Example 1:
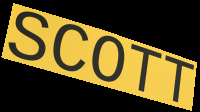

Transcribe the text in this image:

SCOTT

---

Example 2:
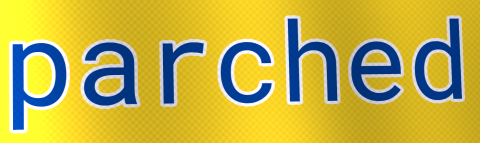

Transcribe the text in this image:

parched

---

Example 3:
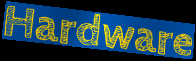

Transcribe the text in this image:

Hardware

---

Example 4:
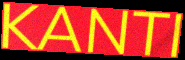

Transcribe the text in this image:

KANTI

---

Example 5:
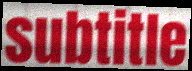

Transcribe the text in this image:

subtitle